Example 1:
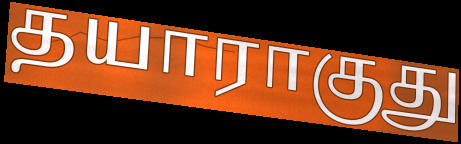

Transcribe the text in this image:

தயாராகுது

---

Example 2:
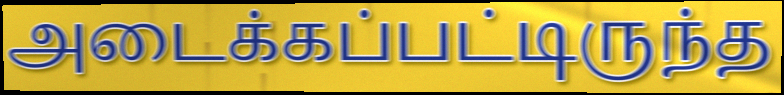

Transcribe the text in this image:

அடைக்கப்பட்டிருந்த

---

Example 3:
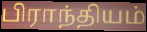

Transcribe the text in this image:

பிராந்தியம்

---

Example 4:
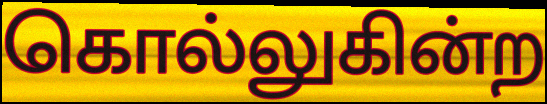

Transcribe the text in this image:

கொல்லுகின்ற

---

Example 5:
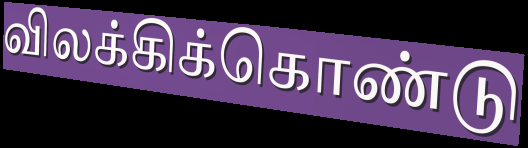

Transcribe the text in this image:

விலக்கிக்கொண்டு